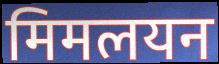
मिमलयन